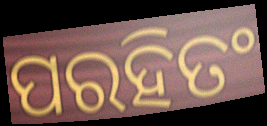
ପରହିତଂ